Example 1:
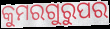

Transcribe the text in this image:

କୁମରଗୁରୁପର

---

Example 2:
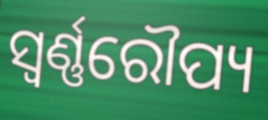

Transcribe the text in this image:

ସ୍ୱର୍ଣ୍ଣରୌପ୍ୟ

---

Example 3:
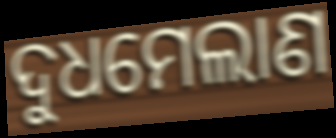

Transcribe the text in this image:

ଦୁଧମେଲାଣ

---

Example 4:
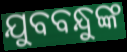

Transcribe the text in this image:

ଯୁବବନ୍ଧୁଙ୍କ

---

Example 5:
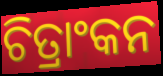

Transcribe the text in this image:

ଚିତ୍ରାଂକନ